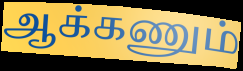
ஆக்கணும்